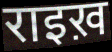
राइख़